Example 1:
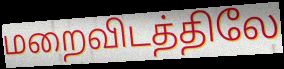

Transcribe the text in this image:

மறைவிடத்திலே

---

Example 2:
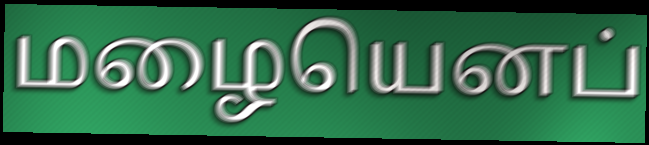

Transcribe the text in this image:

மழையெனப்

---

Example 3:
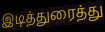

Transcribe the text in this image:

இடித்துரைத்து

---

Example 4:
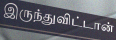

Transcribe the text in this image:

இருந்துவிட்டான்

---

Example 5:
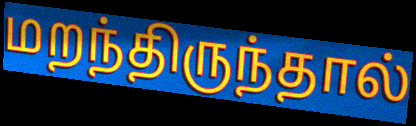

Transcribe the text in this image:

மறந்திருந்தால்